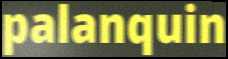
palanquin